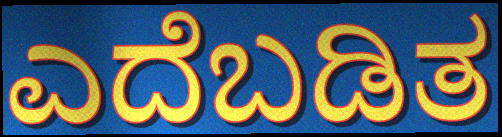
ಎದೆಬಡಿತ